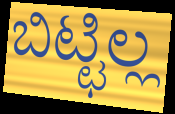
ಬಿಟ್ಟಿಲ್ಲ